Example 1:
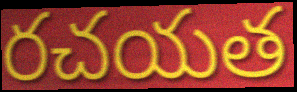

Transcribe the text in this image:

రచయత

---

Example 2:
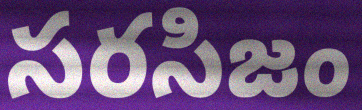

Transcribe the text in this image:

సరసిజం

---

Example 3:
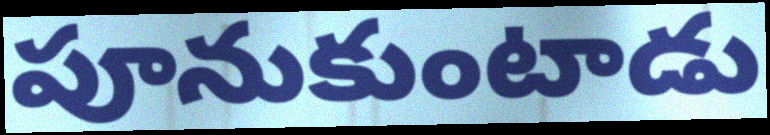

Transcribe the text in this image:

పూనుకుంటాడు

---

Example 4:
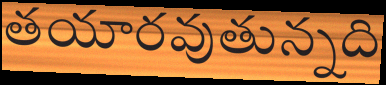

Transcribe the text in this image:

తయారవుతున్నది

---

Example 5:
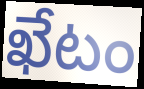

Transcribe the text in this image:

ఖేటం